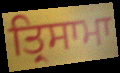
ਤ੍ਰਿਸਾਮਾ